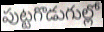
పుట్టగొడుగుల్లో